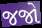
જજો